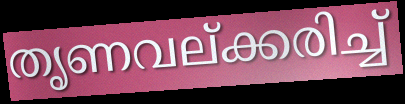
തൃണവല്ക്കരിച്ച്